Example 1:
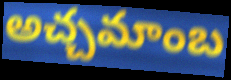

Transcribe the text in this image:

అచ్చమాంబ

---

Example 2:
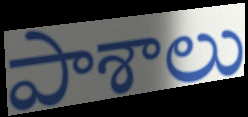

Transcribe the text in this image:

పాశాలు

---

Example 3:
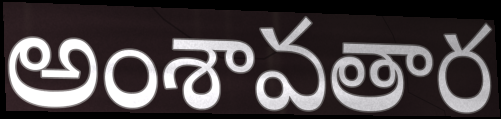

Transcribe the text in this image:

అంశావతార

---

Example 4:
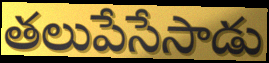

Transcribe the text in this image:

తలుపేసేసాడు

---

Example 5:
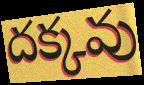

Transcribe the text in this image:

దక్కవు